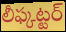
లీఫ్కట్టర్